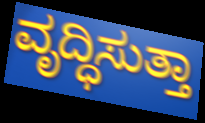
ವೃದ್ಧಿಸುತ್ತಾ